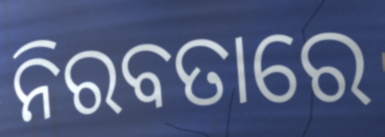
ନିରବତାରେ